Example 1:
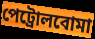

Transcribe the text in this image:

পেট্রোলবোমা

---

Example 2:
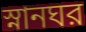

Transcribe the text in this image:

স্নানঘর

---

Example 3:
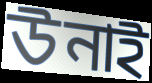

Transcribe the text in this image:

উনাই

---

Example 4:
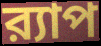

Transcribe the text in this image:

র‍্যাপ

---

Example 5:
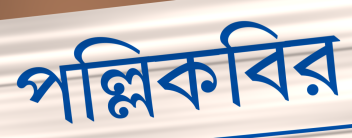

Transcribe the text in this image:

পল্লিকবির